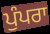
ਪੁੰਪਰਾ